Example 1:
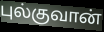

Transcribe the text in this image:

புல்குவான்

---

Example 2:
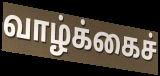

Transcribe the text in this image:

வாழ்க்கைச்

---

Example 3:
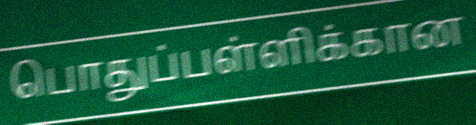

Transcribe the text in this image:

பொதுப்பள்ளிக்கான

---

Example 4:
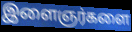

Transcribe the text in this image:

இளைஞர்களை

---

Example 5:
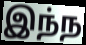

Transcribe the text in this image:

இந்ந